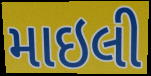
માઇલી